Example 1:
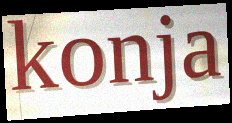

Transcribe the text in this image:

konja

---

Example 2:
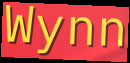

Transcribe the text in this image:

Wynn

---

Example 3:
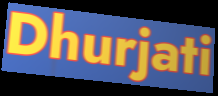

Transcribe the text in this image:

Dhurjati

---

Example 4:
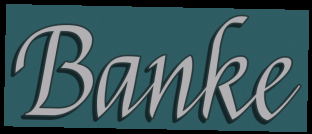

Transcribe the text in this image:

Banke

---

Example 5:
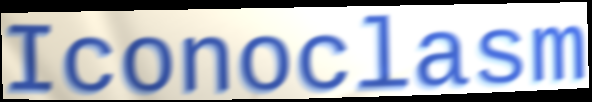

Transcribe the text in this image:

Iconoclasm